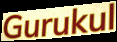
Gurukul